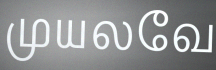
முயலவே